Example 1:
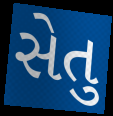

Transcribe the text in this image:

સેતુ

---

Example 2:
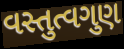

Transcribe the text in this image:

વસ્તુત્વગુણ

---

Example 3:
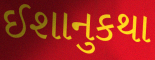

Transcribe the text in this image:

ઈશાનુકથા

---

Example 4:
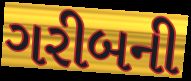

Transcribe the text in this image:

ગરીબની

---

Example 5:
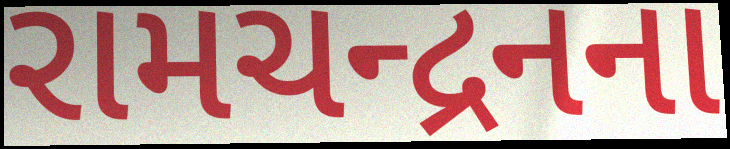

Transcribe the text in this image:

રામચન્દ્રનના